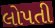
લોપતી